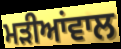
ਮੜੀਆਂਵਾਲ